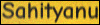
Sahityanu